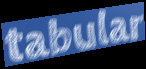
tabular